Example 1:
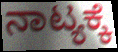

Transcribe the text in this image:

ನಾಟ್ಯಕ್ಕೆ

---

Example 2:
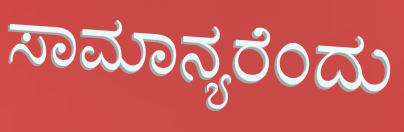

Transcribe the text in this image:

ಸಾಮಾನ್ಯರೆಂದು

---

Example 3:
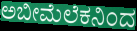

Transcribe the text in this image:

ಅಬೀಮೆಲೆಕನಿಂದ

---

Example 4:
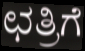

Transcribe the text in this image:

ಛತ್ರಿಗೆ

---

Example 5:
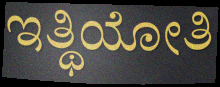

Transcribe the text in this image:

ಇತ್ಥಿಯೋತಿ